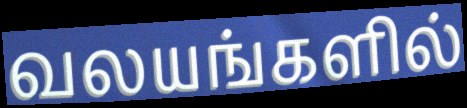
வலயங்களில்